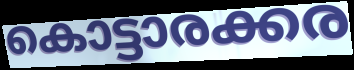
കൊട്ടാരക്കര